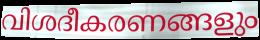
വിശദീകരണങ്ങളും